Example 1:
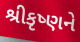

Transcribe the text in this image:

શ્રીકૃષ્ણને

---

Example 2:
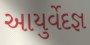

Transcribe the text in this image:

આયુર્વેદજ્ઞ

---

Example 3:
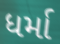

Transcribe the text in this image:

ધર્મા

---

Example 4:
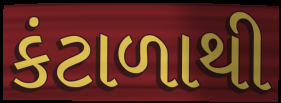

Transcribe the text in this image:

કંટાળાથી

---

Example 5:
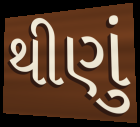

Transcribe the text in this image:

થીણું